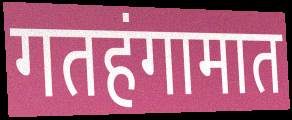
गतहंगामात